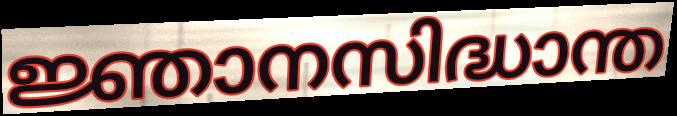
ജ്ഞാനസിദ്ധാന്ത